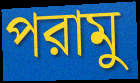
পরামু